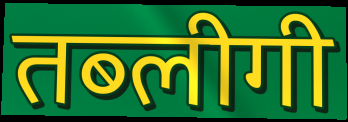
तब्‍लीगी